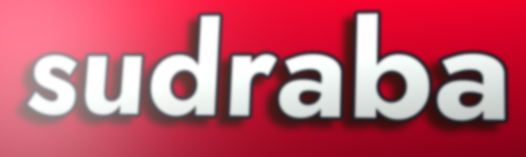
sudraba